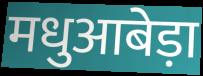
मधुआबेड़ा